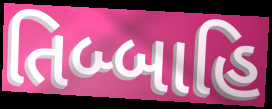
તિબ્બાહિ